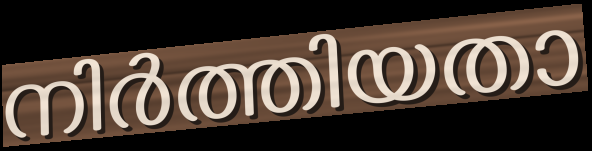
നിർത്തിയതാ